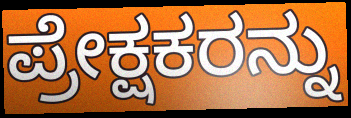
ಪ್ರೇಕ್ಷಕರನ್ನು